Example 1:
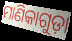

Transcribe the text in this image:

ମାଣିକାଗୁଡ଼ା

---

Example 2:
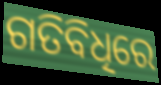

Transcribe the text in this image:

ଗତିବିଧିରେ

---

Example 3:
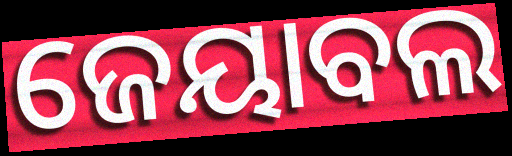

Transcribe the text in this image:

ଜେୟାବଲ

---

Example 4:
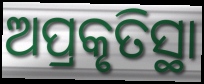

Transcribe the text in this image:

ଅପ୍ରକୃତିସ୍ଥା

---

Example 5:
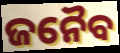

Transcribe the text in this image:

ଜନୈବ